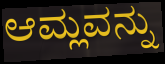
ಆಮ್ಲವನ್ನು